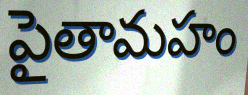
పైతామహం